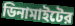
ডিনামাইটের